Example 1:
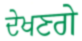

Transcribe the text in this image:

ਦੇਖਣਗੇ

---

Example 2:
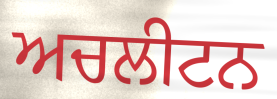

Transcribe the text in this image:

ਅਚਲੀਟਨ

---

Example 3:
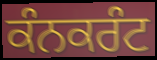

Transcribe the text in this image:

ਕੰਨਕਰੰਟ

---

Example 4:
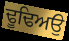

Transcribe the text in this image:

ਢੂਢਿਅਉ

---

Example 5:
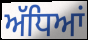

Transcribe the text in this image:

ਅੱਧਿਆਂ